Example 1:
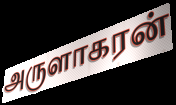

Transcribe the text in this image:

அருளாகரன்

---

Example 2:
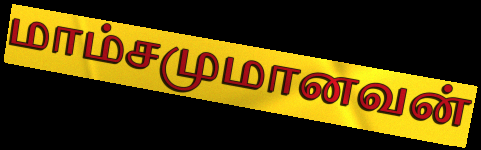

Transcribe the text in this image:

மாம்சமுமானவன்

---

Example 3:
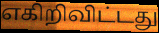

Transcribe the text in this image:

எகிறிவிட்டது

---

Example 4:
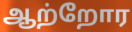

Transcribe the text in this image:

ஆற்றோர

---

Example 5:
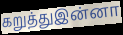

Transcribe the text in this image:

கறுத்துஇன்னா